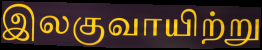
இலகுவாயிற்று